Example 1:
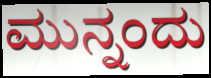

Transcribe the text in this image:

ಮುನ್ನಂದು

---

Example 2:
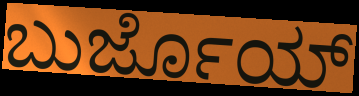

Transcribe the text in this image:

ಬುರ್ಜೊಯ್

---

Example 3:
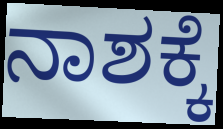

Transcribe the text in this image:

ನಾಶಕ್ಕೆ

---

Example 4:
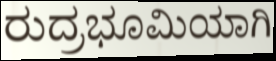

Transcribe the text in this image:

ರುದ್ರಭೂಮಿಯಾಗಿ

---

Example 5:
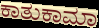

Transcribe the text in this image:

ಕಾತುಕಾಮಾ